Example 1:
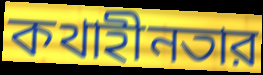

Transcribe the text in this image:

কথাহীনতার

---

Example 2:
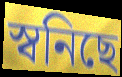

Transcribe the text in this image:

স্বনিছে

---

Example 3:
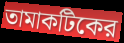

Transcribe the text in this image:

তামাকটিকের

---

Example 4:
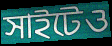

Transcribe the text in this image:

সাইটেও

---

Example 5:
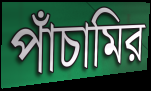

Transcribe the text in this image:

পাঁচামির